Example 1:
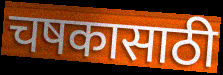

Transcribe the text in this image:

चषकासाठी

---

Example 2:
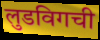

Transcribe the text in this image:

लुडविगची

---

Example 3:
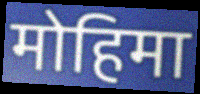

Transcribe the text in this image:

मोहिमा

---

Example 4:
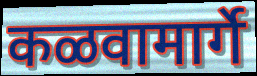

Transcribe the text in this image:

कळवामार्गे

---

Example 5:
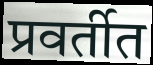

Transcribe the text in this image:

प्रवर्तीत